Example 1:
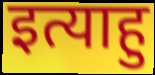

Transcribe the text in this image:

इत्याहु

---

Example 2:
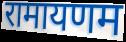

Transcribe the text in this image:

रामायणम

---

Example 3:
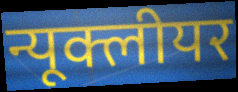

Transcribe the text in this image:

न्यूक्लीयर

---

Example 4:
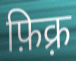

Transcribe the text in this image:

फ़िक़्र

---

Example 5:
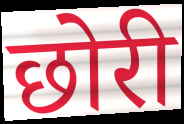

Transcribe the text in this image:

छोरी